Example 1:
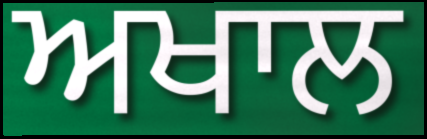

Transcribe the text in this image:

ਅਖਾਲ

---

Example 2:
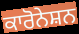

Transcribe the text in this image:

ਕਾਰੋਨੇਸ਼ਨ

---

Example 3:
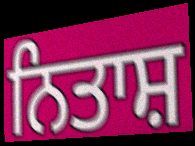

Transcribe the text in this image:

ਨਿਤਾਸ਼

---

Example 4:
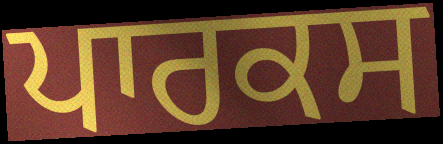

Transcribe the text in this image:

ਪਾਰਕਸ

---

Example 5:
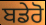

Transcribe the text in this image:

ਬਡੇਰੋ